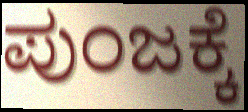
ಪುಂಜಕ್ಕೆ